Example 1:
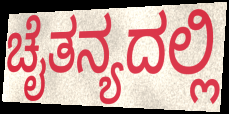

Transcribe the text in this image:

ಚೈತನ್ಯದಲ್ಲಿ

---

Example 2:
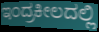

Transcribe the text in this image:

ಇಂದ್ರಕೀಲದಲ್ಲಿ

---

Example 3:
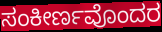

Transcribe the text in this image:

ಸಂಕೀರ್ಣವೊಂದರ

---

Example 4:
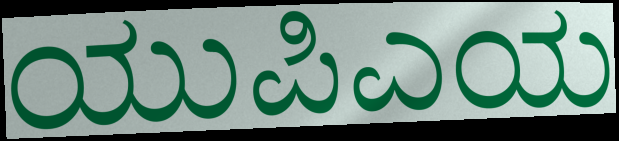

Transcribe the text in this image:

ಯುಪಿಎಯ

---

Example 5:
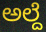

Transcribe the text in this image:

ಅಲ್ದೆ